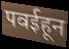
पवईहून